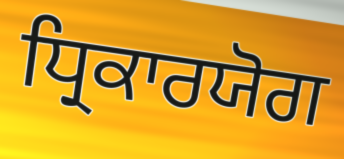
ਧ੍ਰਿਕਾਰਯੋਗ